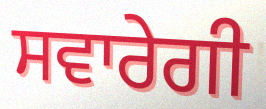
ਸਵਾਰੇਗੀ